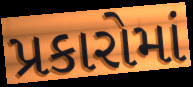
પ્રકારોમાં